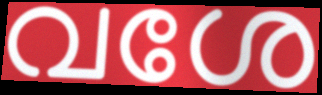
വശേ